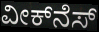
ವೀಕ್‌ನೆಸ್